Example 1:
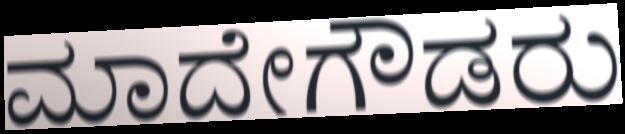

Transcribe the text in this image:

ಮಾದೇಗೌಡರು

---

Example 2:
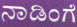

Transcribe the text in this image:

ನಾಡಿಂಗೆ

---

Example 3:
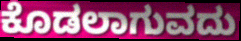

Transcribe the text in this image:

ಕೊಡಲಾಗುವದು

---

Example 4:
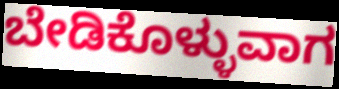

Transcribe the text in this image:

ಬೇಡಿಕೊಳ್ಳುವಾಗ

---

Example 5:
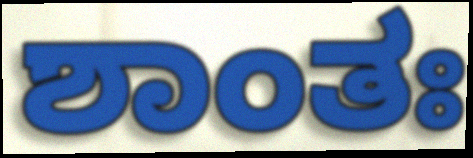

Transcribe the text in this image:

ಶಾಂತಃ